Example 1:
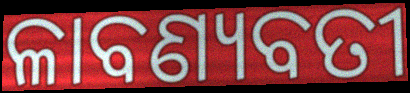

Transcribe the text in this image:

ଳାବଣ୍ୟବତୀ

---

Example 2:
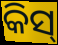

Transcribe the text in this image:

କିସ୍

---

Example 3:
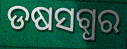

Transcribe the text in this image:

ଡଷସଗ୍ଧର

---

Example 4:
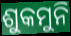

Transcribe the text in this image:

ଶୁକମୁନି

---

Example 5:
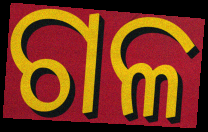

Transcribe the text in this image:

ଗଳ